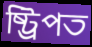
ষ্ট্ৰিপত